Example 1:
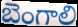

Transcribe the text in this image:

బెంగాలి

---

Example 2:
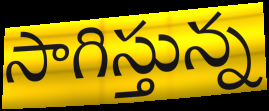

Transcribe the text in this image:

సాగిస్తున్న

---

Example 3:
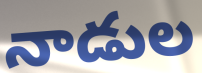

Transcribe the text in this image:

నాడుల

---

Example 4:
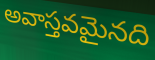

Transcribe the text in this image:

అవాస్తవమైనది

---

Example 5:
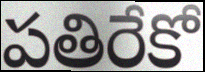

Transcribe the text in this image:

పతిరేకో